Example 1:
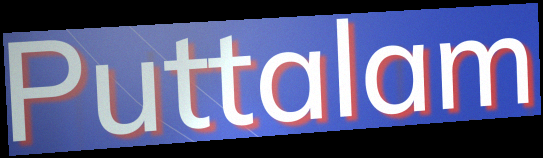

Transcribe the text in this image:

Puttalam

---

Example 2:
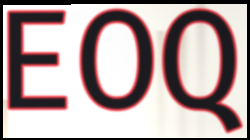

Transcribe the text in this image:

EOQ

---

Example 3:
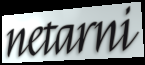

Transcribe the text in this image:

netarni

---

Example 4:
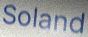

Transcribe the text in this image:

Soland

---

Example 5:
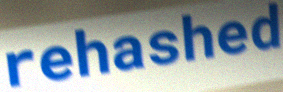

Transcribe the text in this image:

rehashed